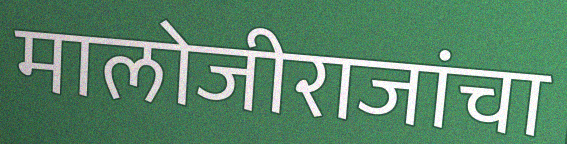
मालोजीराजांचा